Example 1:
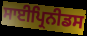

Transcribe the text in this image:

ਸਾਈਪ੍ਰਿਨੀਡਸ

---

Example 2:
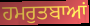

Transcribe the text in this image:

ਹਮਰੁਤਬਾਆਂ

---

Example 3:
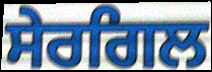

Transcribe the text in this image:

ਸੇਰਗਿਲ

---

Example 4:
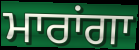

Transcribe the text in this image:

ਮਾਰਾਂਗਾ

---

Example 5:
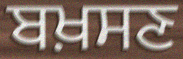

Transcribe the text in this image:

ਬਖ਼ਸਣ